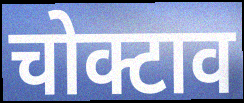
चोक्टाव